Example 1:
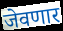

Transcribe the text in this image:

जेवणार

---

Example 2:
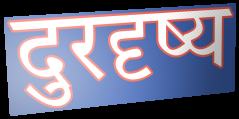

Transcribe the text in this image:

दुरदृष्य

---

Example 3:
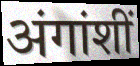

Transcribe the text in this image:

अंगांशीं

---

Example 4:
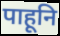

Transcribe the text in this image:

पाहूनि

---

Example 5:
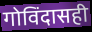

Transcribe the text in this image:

गोविंदासही